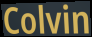
Colvin